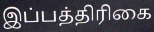
இப்பத்திரிகை